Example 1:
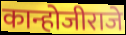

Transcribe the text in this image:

कान्होजीराजे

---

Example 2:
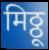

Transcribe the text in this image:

मिठ्ठू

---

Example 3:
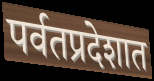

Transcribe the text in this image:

पर्वतप्रदेशात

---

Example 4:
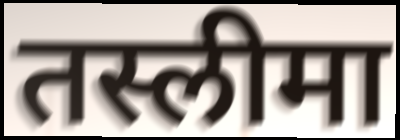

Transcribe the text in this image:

तस्लीमा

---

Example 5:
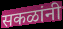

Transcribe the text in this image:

सकळांनी